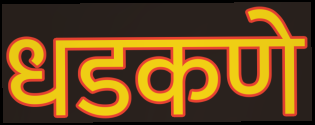
धडकणे